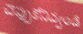
చెప్పుకోనివ్వండి